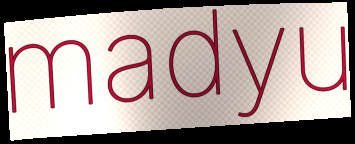
madyu